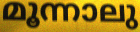
മൂന്നാലു